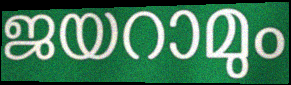
ജയറാമും